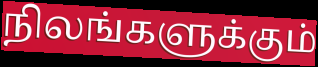
நிலங்களுக்கும்